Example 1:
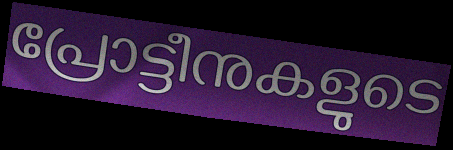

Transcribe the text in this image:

പ്രോട്ടീനുകളുടെ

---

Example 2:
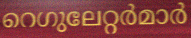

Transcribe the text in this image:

റെഗുലേറ്റർമാർ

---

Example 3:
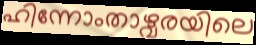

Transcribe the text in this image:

ഹിന്നോംതാഴ്വരയിലെ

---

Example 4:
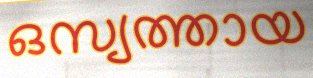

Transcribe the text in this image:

ഒസ്യത്തായ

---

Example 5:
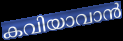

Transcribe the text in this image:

കവിയാവാൻ